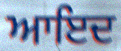
ਆਇਦ